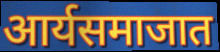
आर्यसमाजात